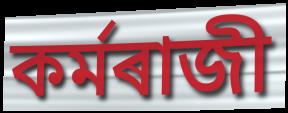
কৰ্মৰাজী